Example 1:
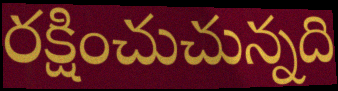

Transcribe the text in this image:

రక్షించుచున్నది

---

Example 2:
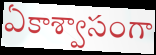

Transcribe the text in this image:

ఏకాశ్వాసంగా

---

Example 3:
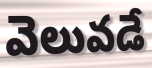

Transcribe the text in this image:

వెలువడే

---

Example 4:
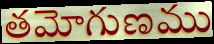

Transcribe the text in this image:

తమోగుణము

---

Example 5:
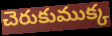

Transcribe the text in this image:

చెరుకుముక్క